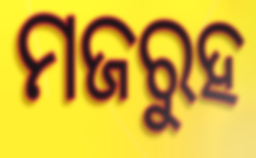
ମଜରୁହ